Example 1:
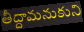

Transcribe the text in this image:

తీద్దామనుకుని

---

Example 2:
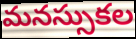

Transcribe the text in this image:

మనస్సుకల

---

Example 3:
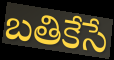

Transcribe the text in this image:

బతికేసే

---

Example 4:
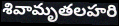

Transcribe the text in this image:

శివామృతలహరి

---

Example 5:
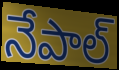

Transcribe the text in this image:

నేపాల్